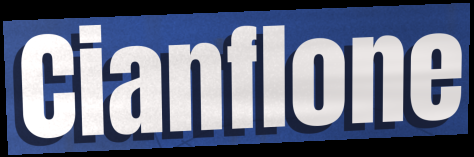
Cianflone